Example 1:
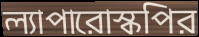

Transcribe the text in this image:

ল্যাপারোস্কপির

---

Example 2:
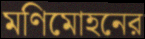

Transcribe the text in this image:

মণিমোহনের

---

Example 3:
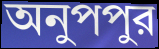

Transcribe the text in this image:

অনুপপুর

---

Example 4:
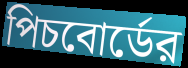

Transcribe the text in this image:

পিচবোর্ডের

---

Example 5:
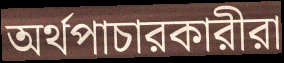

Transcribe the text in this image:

অর্থপাচারকারীরা